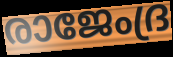
രാജേംദ്ര